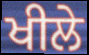
ਖੀਲੇ